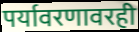
पर्यावरणावरही